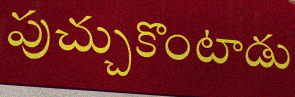
పుచ్చుకొంటాడు